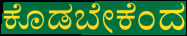
ಕೊಡಬೇಕೆಂದ